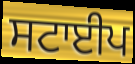
ਸਟਾਈਪ